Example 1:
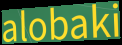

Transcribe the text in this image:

alobaki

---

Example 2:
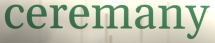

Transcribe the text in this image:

ceremany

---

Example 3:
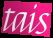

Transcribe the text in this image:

tais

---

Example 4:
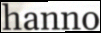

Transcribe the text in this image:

hanno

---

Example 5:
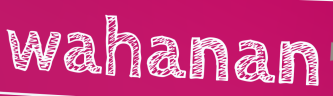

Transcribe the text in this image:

wahanan